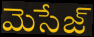
మెసేజ్